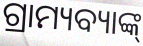
ଗ୍ରାମ୍ୟବ୍ୟାଙ୍କ୍